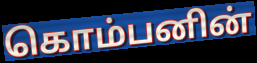
கொம்பனின்